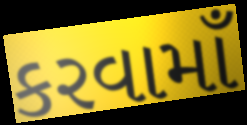
કરવામાઁ